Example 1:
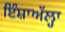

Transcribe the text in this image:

ਇੰਸ਼ਾਅੱਲ੍ਹਾ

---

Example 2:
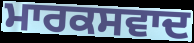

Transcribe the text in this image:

ਮਾਰਕਸਵਾਦ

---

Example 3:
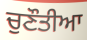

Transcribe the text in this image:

ਚੁਣੌਤੀਆ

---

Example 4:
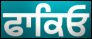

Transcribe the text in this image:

ਫਾਕਿਓ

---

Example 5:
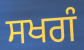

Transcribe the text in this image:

ਸਖਗੰ